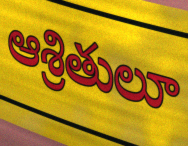
ఆశ్రితులూ